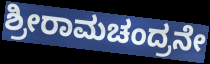
ಶ್ರೀರಾಮಚಂದ್ರನೇ